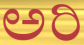
ಅರಿ